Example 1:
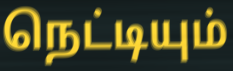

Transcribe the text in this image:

நெட்டியும்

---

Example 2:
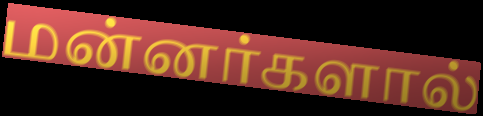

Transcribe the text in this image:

மன்னர்களால்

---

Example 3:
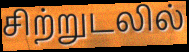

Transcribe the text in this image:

சிற்றுடலில்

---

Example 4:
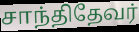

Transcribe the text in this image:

சாந்திதேவர்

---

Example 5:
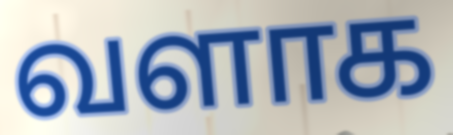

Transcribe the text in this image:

வளாக